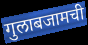
गुलाबजामची